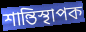
শান্তিস্থাপক